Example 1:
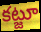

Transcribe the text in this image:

కట్జూ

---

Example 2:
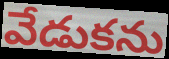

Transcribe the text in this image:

వేడుకను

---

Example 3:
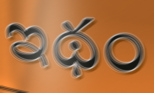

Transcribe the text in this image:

ఇథం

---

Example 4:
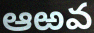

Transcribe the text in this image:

ఆఱవ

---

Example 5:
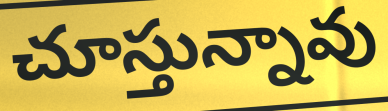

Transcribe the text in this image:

చూస్తున్నావు